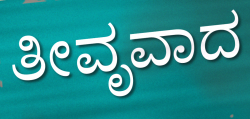
ತೀವೃವಾದ